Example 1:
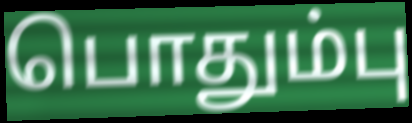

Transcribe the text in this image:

பொதும்பு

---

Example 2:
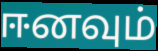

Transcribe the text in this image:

ஈனவும்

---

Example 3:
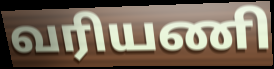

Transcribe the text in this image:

வரியணி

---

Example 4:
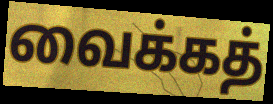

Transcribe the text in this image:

வைக்கத்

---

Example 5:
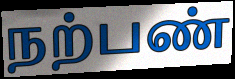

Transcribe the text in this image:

நற்பண்